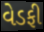
વેડફી